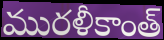
మురళీకాంత్